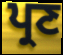
ਪ੍ਰਣ